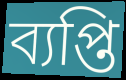
ব্যপ্তি